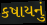
કષાયનું